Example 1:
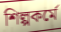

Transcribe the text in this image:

শিল্পকর্মে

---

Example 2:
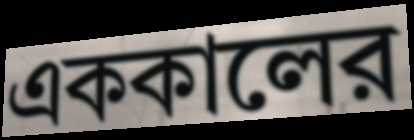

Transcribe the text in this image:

এককালের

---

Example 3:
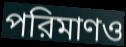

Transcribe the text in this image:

পরিমাণও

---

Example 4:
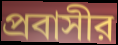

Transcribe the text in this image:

প্রবাসীর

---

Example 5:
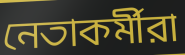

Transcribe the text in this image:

নেতাকর্মীরা